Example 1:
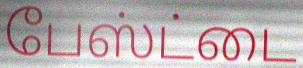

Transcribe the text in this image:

பேஸ்ட்டை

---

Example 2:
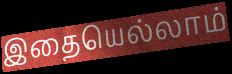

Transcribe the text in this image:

இதையெல்லாம்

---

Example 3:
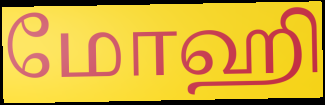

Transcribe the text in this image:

மோஹி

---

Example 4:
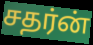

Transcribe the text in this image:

சதர்ன்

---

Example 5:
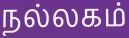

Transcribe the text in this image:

நல்லகம்